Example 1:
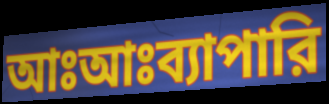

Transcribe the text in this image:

আঃআঃব্যাপারি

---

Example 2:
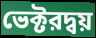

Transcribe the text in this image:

ভেক্টরদ্বয়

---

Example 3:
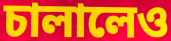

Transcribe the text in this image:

চালালেও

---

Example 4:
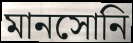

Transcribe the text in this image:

মানসোনি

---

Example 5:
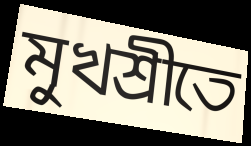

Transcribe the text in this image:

মুখশ্রীতে